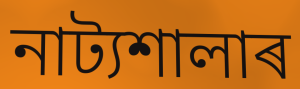
নাট্যশালাৰ